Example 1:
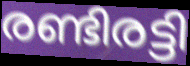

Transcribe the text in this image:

രണ്ടിരട്ടി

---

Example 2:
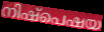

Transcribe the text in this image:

നിഷ്പെഷയ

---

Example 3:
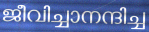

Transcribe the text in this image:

ജീവിച്ചാനന്ദിച്ച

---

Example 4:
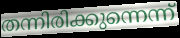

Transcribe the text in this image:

തന്നിരിക്കുന്നെന്ന്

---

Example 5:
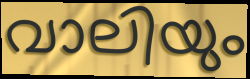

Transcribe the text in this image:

വാലിയും